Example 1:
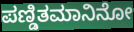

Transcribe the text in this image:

ಪಣ್ಡಿತಮಾನಿನೋ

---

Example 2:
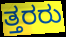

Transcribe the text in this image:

ತ್ತರರು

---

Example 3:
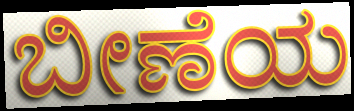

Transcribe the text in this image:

ಬೀಣೆಯ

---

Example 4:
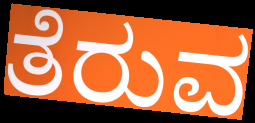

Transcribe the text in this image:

ತೆರುವ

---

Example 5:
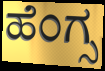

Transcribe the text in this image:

ಹೆಂಗ್ಸ